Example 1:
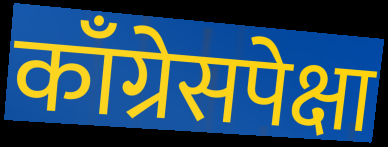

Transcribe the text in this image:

काँग्रेसपेक्षा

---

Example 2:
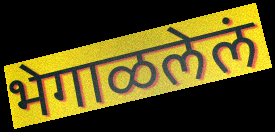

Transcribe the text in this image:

भेगाळलेलं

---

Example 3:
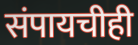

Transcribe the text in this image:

संपायचीही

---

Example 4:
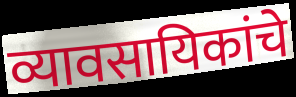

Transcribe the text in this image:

व्यावसायिकांचे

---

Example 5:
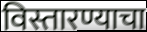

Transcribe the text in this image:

विस्तारण्याचा